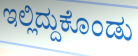
ಇಲ್ಲಿದ್ದುಕೊಂಡು